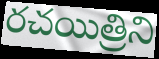
రచయిత్రిని